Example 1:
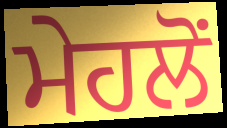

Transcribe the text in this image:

ਮੇਹਲੋਂ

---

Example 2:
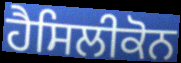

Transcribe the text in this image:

ਹੈਸਿਲੀਕੋਨ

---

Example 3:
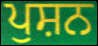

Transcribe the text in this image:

ਪੁਸ਼ਨ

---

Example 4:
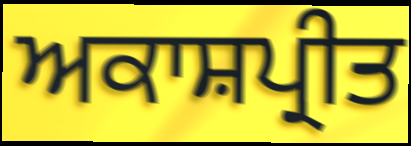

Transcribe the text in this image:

ਅਕਾਸ਼ਪ੍ਰੀਤ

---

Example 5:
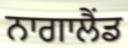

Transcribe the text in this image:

ਨਾਗਾਲੈਂਡ